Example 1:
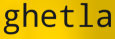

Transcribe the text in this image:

ghetla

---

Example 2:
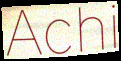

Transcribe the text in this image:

Achi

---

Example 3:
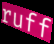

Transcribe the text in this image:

ruff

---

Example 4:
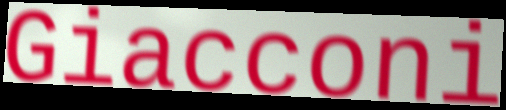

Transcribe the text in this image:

Giacconi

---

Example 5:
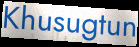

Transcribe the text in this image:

Khusugtun